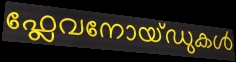
ഫ്ലേവനോയ്ഡുകൾ